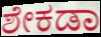
ಶೇಕಡಾ